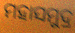
ମହାସମୁଦ୍ର